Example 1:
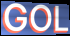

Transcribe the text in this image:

GOL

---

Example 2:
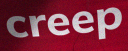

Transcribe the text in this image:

creep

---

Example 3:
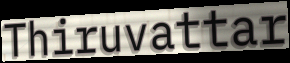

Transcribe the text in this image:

Thiruvattar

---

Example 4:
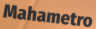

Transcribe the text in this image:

Mahametro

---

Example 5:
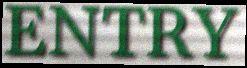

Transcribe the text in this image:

ENTRY